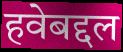
हवेबद्दल